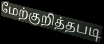
மேற்குறித்தபடி